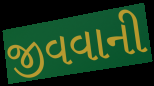
જીવવાની